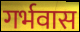
गर्भवास